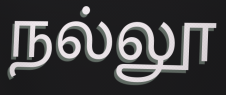
நல்லூ